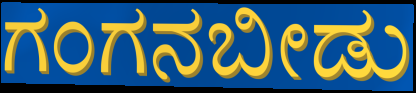
ಗಂಗನಬೀಡು